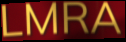
LMRA